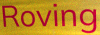
Roving